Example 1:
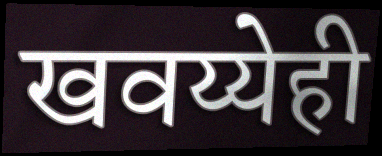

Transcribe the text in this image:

खवय्येही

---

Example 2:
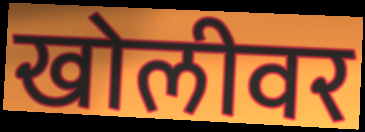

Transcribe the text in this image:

खोलीवर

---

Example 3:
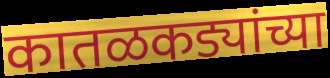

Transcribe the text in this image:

कातळकड्यांच्या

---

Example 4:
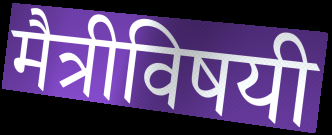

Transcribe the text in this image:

मैत्रीविषयी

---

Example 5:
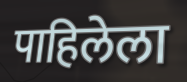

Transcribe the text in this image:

पाहिलेला